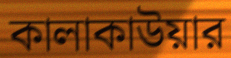
কালাকাউয়ার